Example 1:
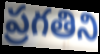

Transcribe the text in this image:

ప్రగతిని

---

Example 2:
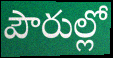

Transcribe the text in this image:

పౌరుల్లో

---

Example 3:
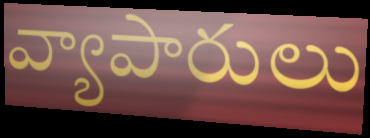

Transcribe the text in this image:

వ్యాపారులు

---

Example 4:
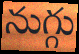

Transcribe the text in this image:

నుగ్గు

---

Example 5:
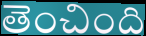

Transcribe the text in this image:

తెంచింది